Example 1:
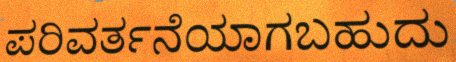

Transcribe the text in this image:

ಪರಿವರ್ತನೆಯಾಗಬಹುದು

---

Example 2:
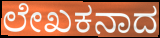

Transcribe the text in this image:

ಲೇಖಕನಾದ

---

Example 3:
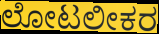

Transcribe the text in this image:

ಲೋಟಲೀಕರ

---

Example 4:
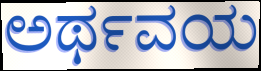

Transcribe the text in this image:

ಅರ್ಥವಯ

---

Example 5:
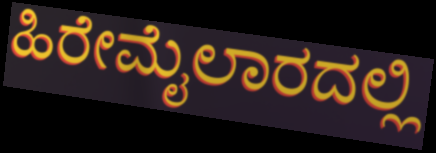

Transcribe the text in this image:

ಹಿರೇಮೈಲಾರದಲ್ಲಿ